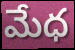
మేధ